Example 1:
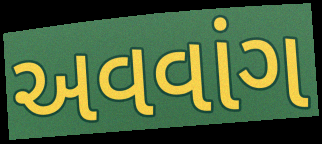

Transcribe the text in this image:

અવવાંગ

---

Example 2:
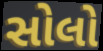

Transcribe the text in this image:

સોલો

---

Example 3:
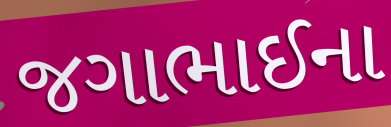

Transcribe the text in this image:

જગાભાઈના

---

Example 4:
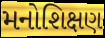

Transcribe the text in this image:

મનોશિક્ષણ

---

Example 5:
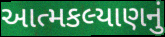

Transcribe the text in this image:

આત્મકલ્યાણનું